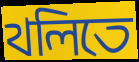
থলিতে